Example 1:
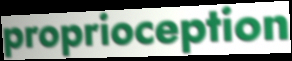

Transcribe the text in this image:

proprioception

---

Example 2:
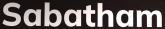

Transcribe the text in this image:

Sabatham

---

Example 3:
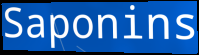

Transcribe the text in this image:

Saponins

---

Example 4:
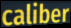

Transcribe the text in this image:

caliber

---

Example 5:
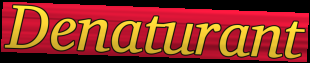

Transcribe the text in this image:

Denaturant